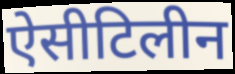
ऐसीटिलीन